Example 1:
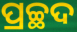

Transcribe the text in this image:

ପ୍ରଚ୍ଛଦ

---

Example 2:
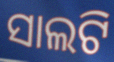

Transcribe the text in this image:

ସାଲଟି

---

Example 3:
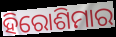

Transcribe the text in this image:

ହିରୋଶିମାର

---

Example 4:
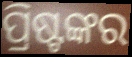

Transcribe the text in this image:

ପ୍ରିଷ୍ଟଙ୍କର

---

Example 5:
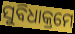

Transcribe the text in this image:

ସୁବିଧାକ୍ରମେ